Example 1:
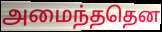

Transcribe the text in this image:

அமைந்ததென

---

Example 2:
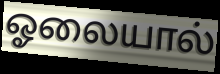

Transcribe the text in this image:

ஓலையால்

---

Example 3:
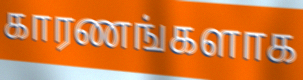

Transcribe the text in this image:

காரணங்களாக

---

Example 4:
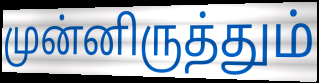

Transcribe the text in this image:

முன்னிருத்தும்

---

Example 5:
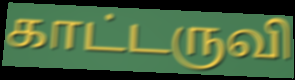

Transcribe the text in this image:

காட்டருவி